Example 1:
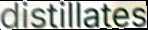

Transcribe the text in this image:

distillates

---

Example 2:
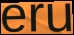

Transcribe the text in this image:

eru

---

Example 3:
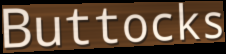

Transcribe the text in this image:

Buttocks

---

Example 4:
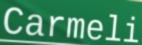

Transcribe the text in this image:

Carmeli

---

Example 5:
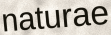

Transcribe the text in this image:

naturae